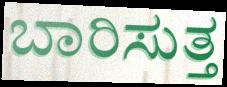
ಬಾರಿಸುತ್ತ